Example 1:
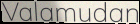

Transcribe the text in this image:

Valamudan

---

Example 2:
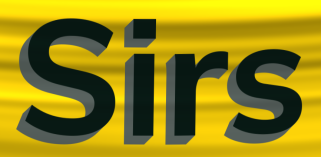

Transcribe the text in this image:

Sirs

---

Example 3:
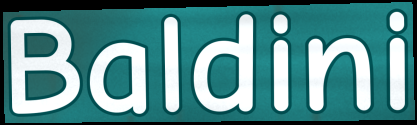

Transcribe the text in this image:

Baldini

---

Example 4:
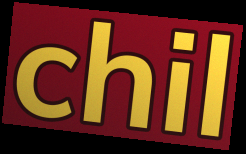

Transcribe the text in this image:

chil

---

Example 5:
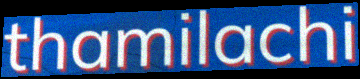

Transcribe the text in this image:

thamilachi